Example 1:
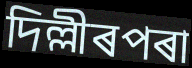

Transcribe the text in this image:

দিল্লীৰপৰা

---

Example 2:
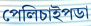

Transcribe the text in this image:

পেলিচাইপডা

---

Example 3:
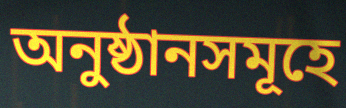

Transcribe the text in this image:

অনুষ্ঠানসমূহে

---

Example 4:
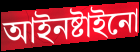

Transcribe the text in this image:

আইনষ্টাইনো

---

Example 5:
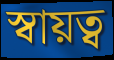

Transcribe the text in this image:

স্বায়ত্ব